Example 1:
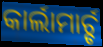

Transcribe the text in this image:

କାର୍ଲାମାର୍ଚ୍ଚ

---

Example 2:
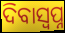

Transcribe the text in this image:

ଦିବାସ୍ଵପ୍ନ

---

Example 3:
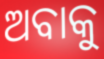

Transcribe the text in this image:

ଅବାକୁ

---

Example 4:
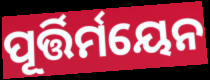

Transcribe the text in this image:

ପୂର୍ତ୍ତିର୍ମୟେନ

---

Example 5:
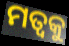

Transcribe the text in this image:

ମତ୍ୱକୁ